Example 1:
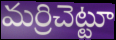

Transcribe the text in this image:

మర్రిచెట్టూ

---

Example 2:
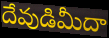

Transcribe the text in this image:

దేవుడిమీదా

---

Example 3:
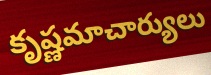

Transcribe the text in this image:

కృష్ణమాచార్యులు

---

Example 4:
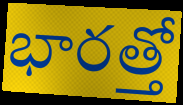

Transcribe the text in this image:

భారత్తో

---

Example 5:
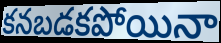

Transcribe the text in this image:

కనబడకపోయినా